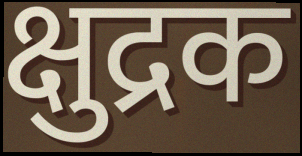
क्षुद्रक